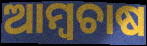
ଆମ୍ୱଚାଷ